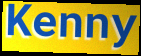
Kenny